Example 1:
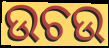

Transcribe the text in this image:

ଉଚଉ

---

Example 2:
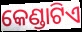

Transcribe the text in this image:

କେଣ୍ଡାଟିଏ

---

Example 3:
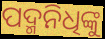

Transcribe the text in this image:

ପଦ୍ମନିଧିଙ୍କୁ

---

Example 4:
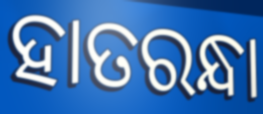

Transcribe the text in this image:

ହାତରନ୍ଧା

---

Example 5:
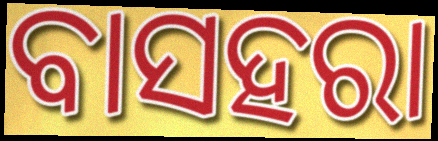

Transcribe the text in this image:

ବାସହରା